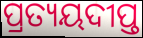
ପ୍ରତ୍ୟୟଦୀପ୍ତ